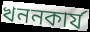
খননকাৰ্য